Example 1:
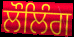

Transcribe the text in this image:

ਲੌਲਿੰਗ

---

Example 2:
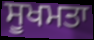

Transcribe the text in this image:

ਸੂਖਮਤਾ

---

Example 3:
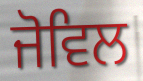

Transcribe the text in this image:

ਜੋਵਿਲ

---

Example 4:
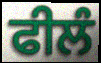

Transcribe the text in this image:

ਫੀਲੰ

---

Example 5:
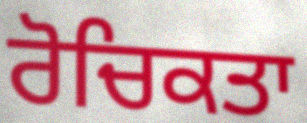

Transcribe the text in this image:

ਰੋਚਿਕਤਾ